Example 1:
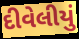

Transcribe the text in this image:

દીવેલીયું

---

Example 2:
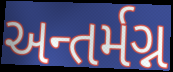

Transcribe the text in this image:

અન્તર્મગ્ન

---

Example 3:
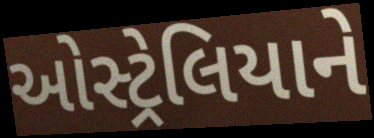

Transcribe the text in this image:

ઓસ્ટ્રેલિયાને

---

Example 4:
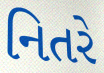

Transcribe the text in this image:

નિતરે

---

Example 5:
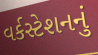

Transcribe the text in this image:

વર્કસ્ટેશનનું